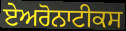
ਏਅਰੋਨਾਟੀਕਸ